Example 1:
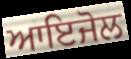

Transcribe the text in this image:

ਆਇਜੋਲ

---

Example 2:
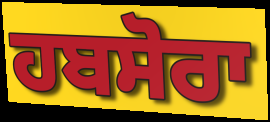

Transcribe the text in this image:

ਹਬਸੋਰਾ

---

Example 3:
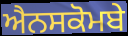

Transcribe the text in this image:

ਐਨਸਕੋਮਬੇ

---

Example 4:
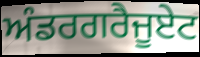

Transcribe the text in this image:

ਅੰਡਰਗਰੈਜੂਏਟ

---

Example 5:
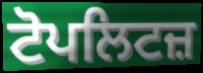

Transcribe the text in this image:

ਟੋਪਲਿਟਜ਼